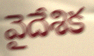
వైదేశిక